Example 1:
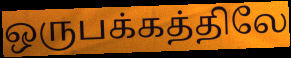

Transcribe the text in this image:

ஒருபக்கத்திலே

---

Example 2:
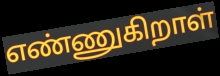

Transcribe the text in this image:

எண்ணுகிறாள்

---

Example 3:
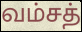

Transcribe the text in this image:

வம்சத்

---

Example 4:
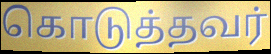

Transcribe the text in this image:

கொடுத்தவர்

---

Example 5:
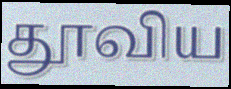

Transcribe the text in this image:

தூவிய